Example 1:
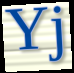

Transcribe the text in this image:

Yj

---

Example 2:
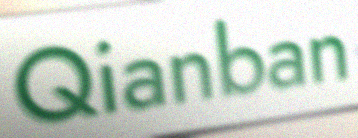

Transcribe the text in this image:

Qianban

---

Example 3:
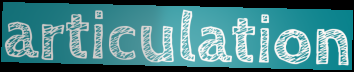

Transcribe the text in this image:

articulation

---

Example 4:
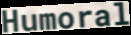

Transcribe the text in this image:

Humoral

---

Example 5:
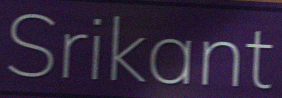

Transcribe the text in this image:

Srikant